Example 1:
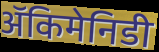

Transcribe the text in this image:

ॲकिमेनिडी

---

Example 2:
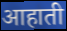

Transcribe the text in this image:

आहाती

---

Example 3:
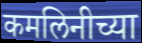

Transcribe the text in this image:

कमलिनीच्या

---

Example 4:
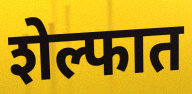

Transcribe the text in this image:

शेल्फात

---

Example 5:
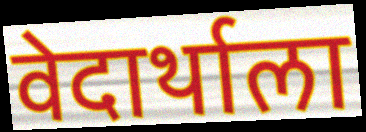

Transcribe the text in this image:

वेदार्थाला